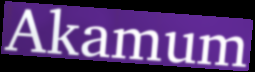
Akamum